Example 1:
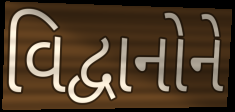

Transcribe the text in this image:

વિદ્વાનોને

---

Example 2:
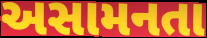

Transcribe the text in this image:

અસામનતા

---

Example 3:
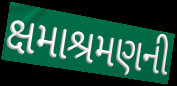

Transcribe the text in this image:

ક્ષમાશ્રમણની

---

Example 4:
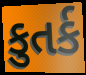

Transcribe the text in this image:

કુતર્ક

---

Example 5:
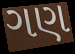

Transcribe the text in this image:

ગણ